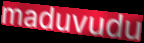
maduvudu